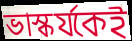
ভাস্কর্যকেই